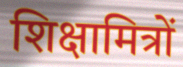
शिक्षामित्रों